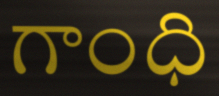
గాంధి